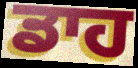
ਡਾਹ